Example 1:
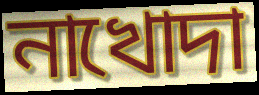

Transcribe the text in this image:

নাখোদা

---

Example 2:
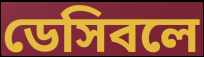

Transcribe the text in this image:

ডেসিবলে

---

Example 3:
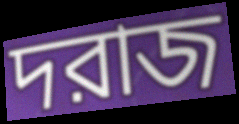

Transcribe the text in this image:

দরাজ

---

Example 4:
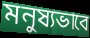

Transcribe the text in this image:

মনুষ্যভাবে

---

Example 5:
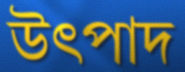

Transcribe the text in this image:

উৎপাদ